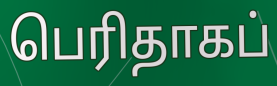
பெரிதாகப்